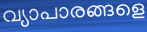
വ്യാപാരങ്ങളെ